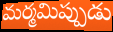
మర్మమిప్పుడు